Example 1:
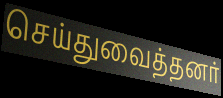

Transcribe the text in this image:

செய்துவைத்தனர்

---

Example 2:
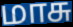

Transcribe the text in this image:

மாசு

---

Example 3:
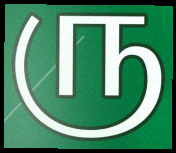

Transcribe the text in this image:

ரு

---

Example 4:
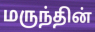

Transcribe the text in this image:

மருந்தின்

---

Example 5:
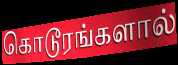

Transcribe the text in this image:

கொடூரங்களால்